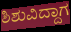
ಶಿಶುವಿದ್ದಾಗ